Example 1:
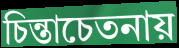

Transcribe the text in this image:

চিন্তাচেতনায়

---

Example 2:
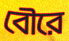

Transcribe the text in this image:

বৌরে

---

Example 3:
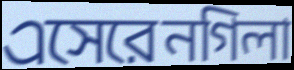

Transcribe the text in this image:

এসেরেনগিলা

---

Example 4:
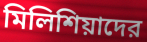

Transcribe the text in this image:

মিলিশিয়াদের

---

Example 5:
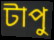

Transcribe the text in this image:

টাপু